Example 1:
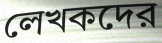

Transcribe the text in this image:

লেখকদের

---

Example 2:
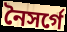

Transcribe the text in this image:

নৈসর্গে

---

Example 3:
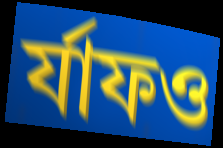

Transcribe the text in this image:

র্যাফও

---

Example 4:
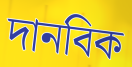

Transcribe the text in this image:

দানবিক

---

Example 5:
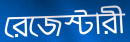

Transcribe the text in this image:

রেজেস্টারী